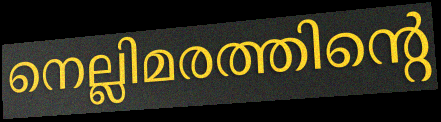
നെല്ലിമരത്തിന്റെ